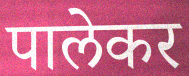
पालेकर